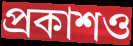
প্রকাশও